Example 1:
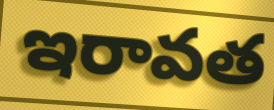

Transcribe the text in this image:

ఇరావత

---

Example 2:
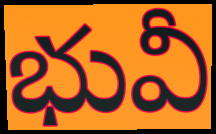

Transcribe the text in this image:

భువీ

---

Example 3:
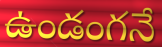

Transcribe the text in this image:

ఉండంగనే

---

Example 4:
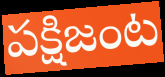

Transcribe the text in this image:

పక్షిజంట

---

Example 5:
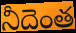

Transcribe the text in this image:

నీదెంత